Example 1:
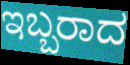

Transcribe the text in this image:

ಇಬ್ಬರಾದ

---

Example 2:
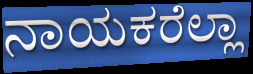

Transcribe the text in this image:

ನಾಯಕರೆಲ್ಲಾ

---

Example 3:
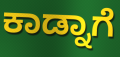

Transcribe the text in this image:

ಕಾಡ್ನಾಗೆ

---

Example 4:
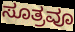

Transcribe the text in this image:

ಸೂತ್ರವೂ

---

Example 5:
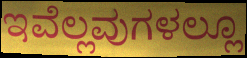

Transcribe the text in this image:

ಇವೆಲ್ಲವುಗಳಲ್ಲೂ